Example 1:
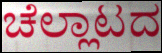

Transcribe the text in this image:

ಚೆಲ್ಲಾಟದ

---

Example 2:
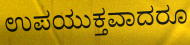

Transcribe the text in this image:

ಉಪಯುಕ್ತವಾದರೂ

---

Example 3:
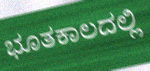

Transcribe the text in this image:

ಭೂತಕಾಲದಲ್ಲಿ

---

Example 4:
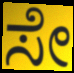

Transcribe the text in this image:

ಸೇ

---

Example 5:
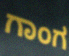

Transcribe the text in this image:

ಗಾಂಗ